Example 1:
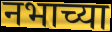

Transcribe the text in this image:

नभाच्या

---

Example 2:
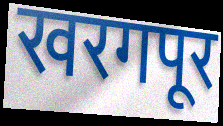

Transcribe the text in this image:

खरगपूर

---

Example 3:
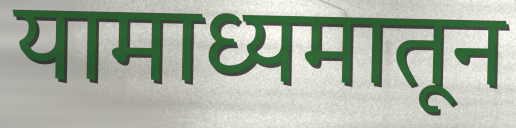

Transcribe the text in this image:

यामाध्यमातून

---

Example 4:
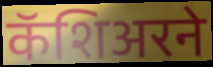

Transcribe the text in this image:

कॅशिअरने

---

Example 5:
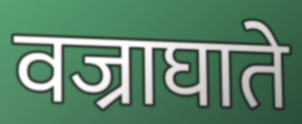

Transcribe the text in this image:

वज्राघाते